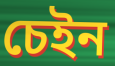
চেইন